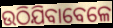
ଉଠିଯିବାବେଳେ